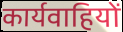
कार्यवाहियों